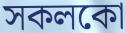
সকলকো